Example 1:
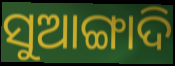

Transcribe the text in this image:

ସୁଆଙ୍ଗାଦି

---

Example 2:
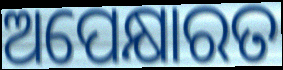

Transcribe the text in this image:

ଅପେକ୍ଷାରତ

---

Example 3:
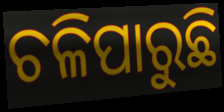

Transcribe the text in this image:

ଚଳିପାରୁଛି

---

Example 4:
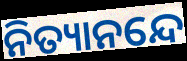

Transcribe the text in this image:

ନିତ୍ୟାନନ୍ଦେ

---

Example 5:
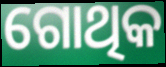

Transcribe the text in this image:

ଗୋଥିକ